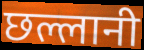
छल्लानी